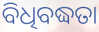
ବିଧିବଦ୍ଧତା